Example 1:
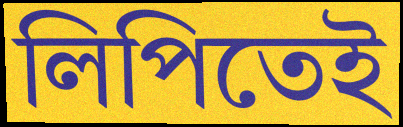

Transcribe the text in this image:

লিপিতেই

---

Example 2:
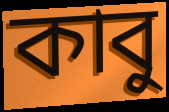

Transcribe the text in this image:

কাবু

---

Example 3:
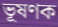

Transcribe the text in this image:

ভূষণক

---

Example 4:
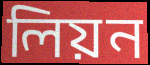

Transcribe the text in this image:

লিয়ন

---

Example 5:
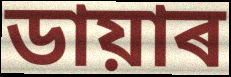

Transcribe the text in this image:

ডায়াৰ